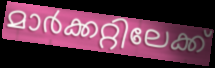
മാർക്കറ്റിലേക്ക്